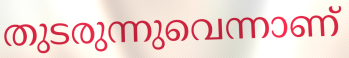
തുടരുന്നുവെന്നാണ്